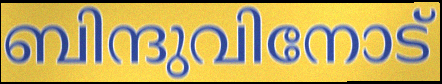
ബിന്ദുവിനോട്